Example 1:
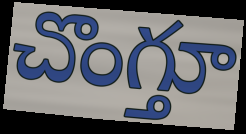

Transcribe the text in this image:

చొంగ్తూ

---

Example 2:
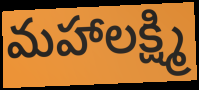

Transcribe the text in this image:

మహాలక్ష్మి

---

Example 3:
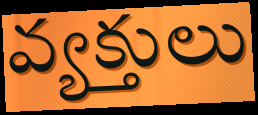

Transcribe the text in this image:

వ్యక్తులు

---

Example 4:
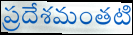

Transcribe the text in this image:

ప్రదేశమంతటి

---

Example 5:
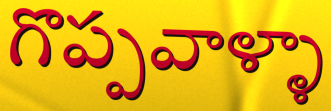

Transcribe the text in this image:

గొప్పవాళ్ళా